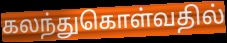
கலந்துகொள்வதில்